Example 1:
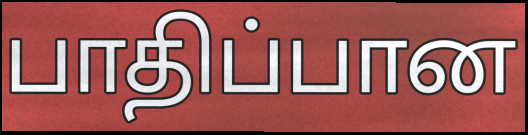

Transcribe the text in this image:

பாதிப்பான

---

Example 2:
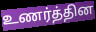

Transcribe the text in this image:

உணர்த்தின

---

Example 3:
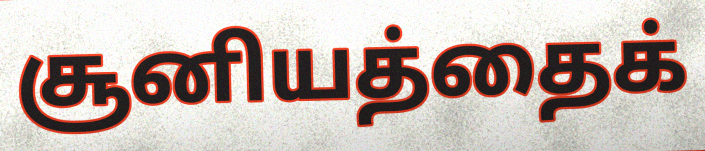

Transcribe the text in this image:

சூனியத்தைக்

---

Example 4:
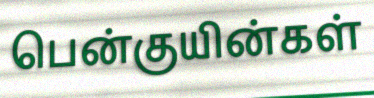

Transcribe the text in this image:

பென்குயின்கள்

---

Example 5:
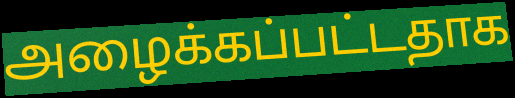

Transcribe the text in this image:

அழைக்கப்பட்டதாக